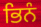
ਭਿਨੰ